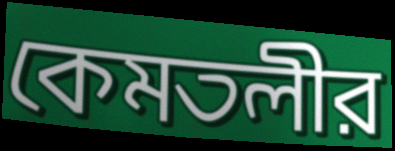
কেমতলীর